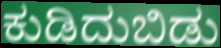
ಕುಡಿದುಬಿಡು